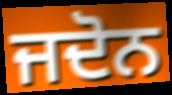
ਜਦੋਨ